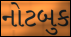
નોટબુક